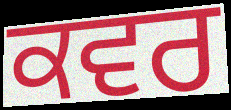
ਕਵਰ